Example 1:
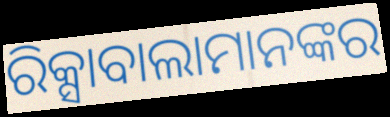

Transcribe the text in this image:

ରିକ୍ସାବାଲାମାନଙ୍କର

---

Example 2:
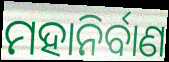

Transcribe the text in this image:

ମହାନିର୍ବାଣ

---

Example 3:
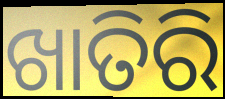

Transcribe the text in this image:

ଖାତିରି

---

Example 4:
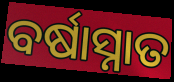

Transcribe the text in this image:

ବର୍ଷାସ୍ନାତ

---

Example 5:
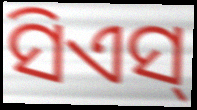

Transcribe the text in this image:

ସିଏସ୍